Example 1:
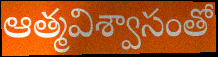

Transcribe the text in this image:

ఆత్మవిశ్వాసంతో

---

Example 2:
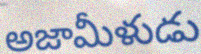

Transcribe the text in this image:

అజామీళుడు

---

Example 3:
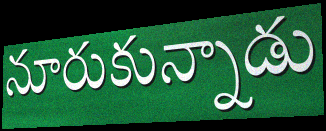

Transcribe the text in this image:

నూరుకున్నాడు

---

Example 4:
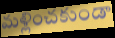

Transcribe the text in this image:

మళ్లించకుండా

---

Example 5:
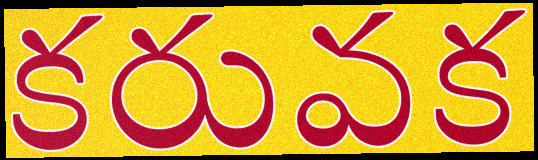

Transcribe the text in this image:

కరువక